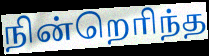
நின்றெரிந்த